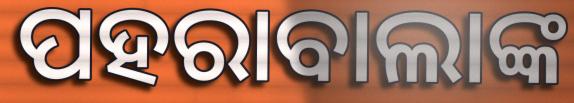
ପହରାବାଲାଙ୍କ